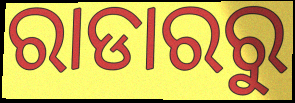
ରାଡାରରୁ